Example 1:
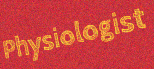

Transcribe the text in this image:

Physiologist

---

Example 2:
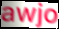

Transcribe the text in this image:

awjo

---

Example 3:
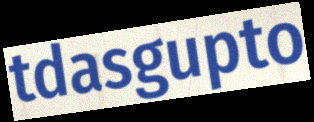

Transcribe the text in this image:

tdasgupto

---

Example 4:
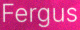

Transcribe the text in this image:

Fergus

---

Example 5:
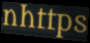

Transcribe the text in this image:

nhttps